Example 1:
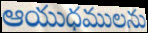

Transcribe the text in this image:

ఆయుధములను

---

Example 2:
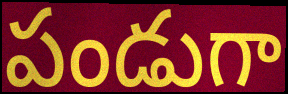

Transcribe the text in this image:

పండుగా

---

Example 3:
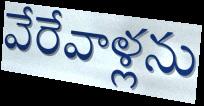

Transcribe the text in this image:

వేరేవాళ్లను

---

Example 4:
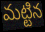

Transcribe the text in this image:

మట్టిన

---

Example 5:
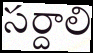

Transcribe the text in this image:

సర్దాలి